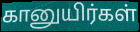
கானுயிர்கள்